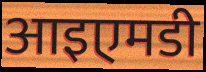
आइएमडी